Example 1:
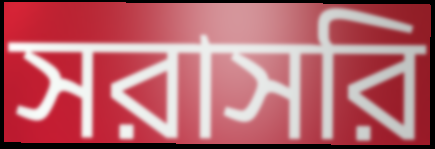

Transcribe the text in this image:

সরাসরি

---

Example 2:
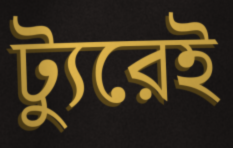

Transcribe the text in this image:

ট্যুরেই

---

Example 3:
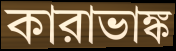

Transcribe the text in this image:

কারাভাঙ্ক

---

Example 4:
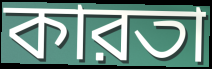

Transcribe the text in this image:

কারতা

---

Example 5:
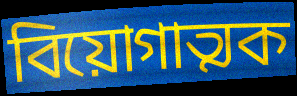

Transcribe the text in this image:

বিয়োগাত্মক